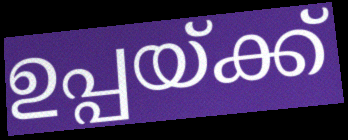
ഉപ്പയ്ക്ക്